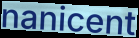
nanicent